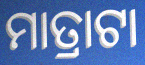
ମାତ୍ରାଟା